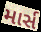
માર્સ